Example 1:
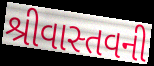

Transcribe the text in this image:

શ્રીવાસ્તવની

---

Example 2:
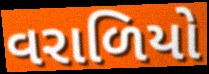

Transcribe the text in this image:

વરાળિયો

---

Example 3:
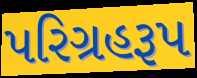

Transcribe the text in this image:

પરિગ્રહરૂપ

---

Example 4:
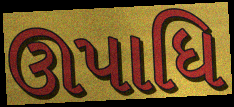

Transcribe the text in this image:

ઊપાધિ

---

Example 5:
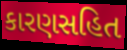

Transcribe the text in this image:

કારણસહિત